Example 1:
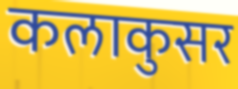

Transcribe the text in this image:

कलाकुसर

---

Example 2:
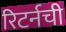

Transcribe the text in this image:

रिटर्नची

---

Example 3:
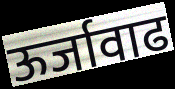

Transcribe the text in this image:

ऊर्जावाढ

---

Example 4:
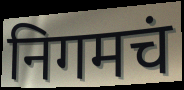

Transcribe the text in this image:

निगमचं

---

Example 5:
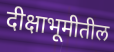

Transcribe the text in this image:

दीक्षाभूमीतील